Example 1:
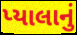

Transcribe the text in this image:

પ્યાલાનું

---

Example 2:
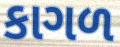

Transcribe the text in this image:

કાગળ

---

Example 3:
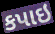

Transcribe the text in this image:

કપાઇ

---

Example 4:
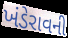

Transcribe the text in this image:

ખંડેરાવની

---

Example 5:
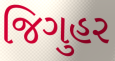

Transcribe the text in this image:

જિગુહર